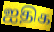
ஐதிக